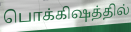
பொக்கிஷத்தில்